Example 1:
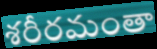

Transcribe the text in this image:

శరీరమంతా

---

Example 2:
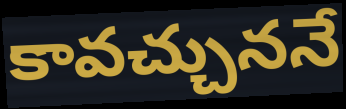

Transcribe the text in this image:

కావచ్చుననే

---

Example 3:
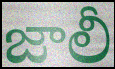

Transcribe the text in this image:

జాలీ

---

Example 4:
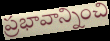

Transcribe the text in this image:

ప్రభావాన్నించి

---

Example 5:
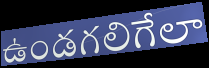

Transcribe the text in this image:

ఉండగలిగేలా